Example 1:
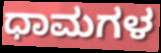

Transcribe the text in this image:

ಧಾಮಗಳ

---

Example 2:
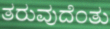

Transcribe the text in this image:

ತರುವುದೆಂತು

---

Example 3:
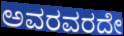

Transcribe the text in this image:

ಅವರವರದೇ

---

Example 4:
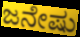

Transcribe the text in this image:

ಜನೇಷು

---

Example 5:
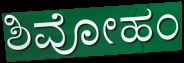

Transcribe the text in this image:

ಶಿವೋಹಂ